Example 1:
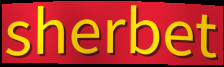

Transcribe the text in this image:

sherbet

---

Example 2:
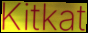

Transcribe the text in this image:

Kitkat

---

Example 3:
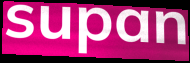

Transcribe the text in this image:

supan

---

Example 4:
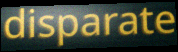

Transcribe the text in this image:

disparate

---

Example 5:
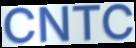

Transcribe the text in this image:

CNTC